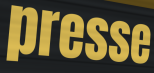
presse